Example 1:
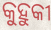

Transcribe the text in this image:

କୁହୁକୀ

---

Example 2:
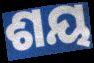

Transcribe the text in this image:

ଶୟ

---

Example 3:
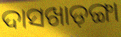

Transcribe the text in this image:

ଦାସଖାଡ଼ଙ୍ଗା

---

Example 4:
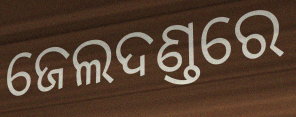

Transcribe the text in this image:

ଜେଲଦଣ୍ଡରେ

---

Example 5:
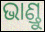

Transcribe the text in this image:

ଭାଣ୍ଡୁ